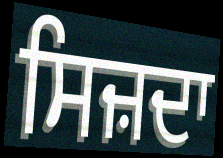
ਸਿਜ਼ਦਾ